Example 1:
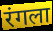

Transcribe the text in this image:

रंगला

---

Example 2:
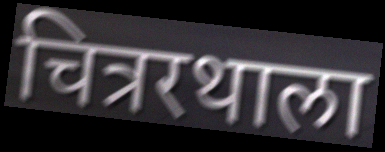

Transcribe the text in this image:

चित्ररथाला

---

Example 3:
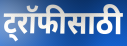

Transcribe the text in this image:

ट्रॉफीसाठी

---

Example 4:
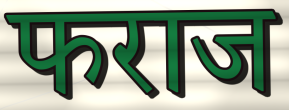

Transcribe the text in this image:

फराज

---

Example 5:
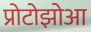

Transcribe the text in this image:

प्रोटोझोआ